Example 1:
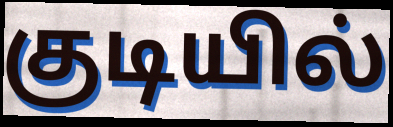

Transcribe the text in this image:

குடியில்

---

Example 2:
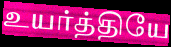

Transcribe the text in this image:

உயர்த்தியே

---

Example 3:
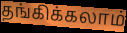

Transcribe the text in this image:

தங்கிக்கலாம்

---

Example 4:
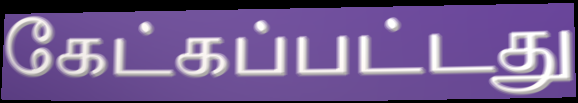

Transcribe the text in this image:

கேட்கப்பட்டது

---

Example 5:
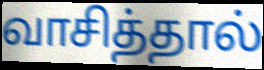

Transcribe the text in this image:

வாசித்தால்